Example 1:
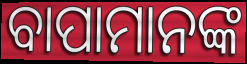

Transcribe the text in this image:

ବାପାମାନଙ୍କ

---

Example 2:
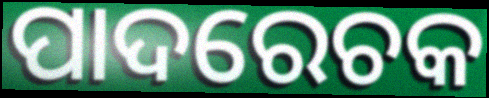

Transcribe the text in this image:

ପାଦରେଚକ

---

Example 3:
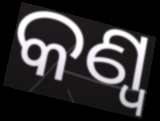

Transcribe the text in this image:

କଣ୍ୱ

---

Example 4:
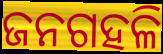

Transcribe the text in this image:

ଜନଗହଳି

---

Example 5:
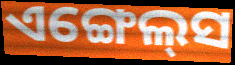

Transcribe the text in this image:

ଏଙ୍ଗେଲ୍‌ସ